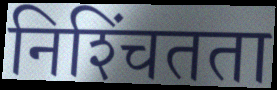
निश्चिंतता